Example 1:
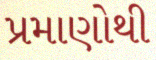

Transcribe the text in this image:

પ્રમાણોથી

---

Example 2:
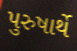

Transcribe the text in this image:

પુરુષાર્થે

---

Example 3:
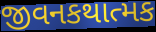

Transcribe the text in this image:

જીવનકથાત્મક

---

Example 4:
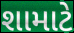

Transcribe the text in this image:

શામાટે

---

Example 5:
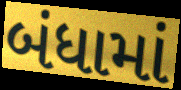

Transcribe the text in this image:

બંધામાં